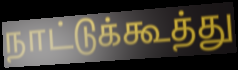
நாட்டுக்கூத்து